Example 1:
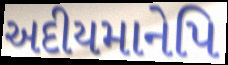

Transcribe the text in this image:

અદીયમાનેપિ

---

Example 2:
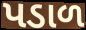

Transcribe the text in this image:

પડાળ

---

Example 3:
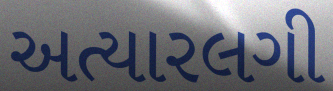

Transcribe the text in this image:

અત્યારલગી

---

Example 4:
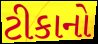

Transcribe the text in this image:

ટીકાનો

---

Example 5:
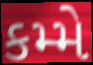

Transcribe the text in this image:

કમ્મે